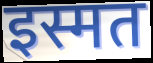
इस्मत